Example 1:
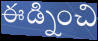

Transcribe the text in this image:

ఈడ్నించి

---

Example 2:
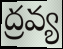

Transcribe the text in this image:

ద్రవ్య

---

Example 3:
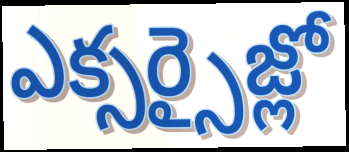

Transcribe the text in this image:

ఎక్సర్సైజ్లో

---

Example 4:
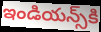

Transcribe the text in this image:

ఇండియన్స్‌కి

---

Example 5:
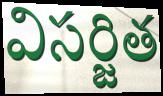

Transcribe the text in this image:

విసర్జిత